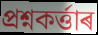
প্ৰশ্নকৰ্ত্তাৰ